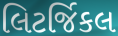
લિટર્જિકલ